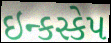
ઇન્કસ્કેપ